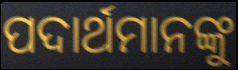
ପଦାର୍ଥମାନଙ୍କୁ